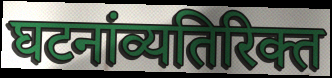
घटनांव्यतिरिक्त